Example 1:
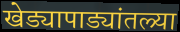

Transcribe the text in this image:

खेड्यापाड्यांतल्या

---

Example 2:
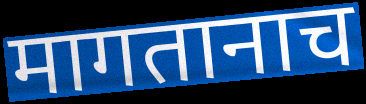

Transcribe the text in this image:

मागतानाच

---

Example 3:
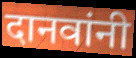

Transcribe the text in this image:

दानवांनी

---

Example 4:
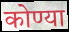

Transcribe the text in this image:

कोण्या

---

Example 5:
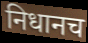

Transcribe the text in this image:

निधानच